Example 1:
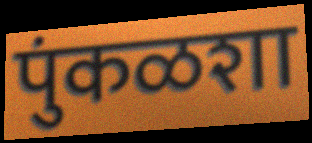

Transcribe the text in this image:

पुंकळशा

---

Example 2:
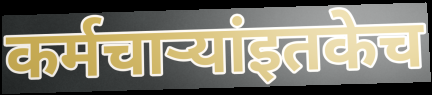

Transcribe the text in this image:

कर्मचाऱ्यांइतकेच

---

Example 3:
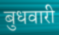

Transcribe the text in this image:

बुधवारी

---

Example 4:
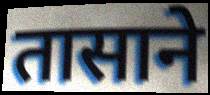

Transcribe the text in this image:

तासाने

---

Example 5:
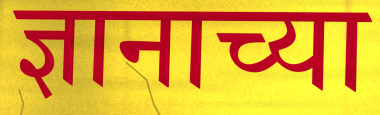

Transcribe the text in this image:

ज्ञानाच्या